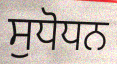
ਸੁਧੋਧਨ